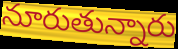
నూరుతున్నారు